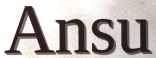
Ansu